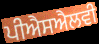
ਪੀਐਸਐਲਵੀ